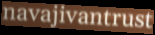
navajivantrust